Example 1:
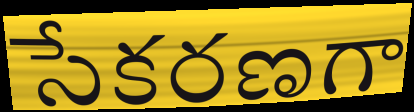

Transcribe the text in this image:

సేకరణగా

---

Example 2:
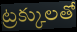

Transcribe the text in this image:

ట్రక్కులతో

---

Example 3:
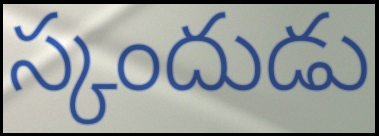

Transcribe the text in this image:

స్కందుడు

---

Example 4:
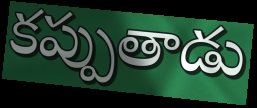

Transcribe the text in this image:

కప్పుతాడు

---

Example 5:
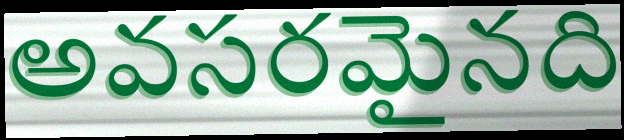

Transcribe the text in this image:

అవసరమైనది